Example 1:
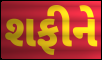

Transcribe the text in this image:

શફીને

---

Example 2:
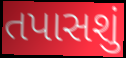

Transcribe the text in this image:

તપાસશું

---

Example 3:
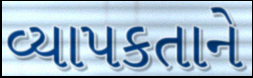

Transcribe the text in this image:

વ્યાપકતાને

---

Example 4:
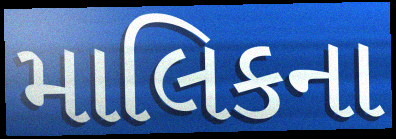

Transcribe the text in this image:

માલિકના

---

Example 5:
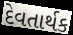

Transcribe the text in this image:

દેવતાર્થક